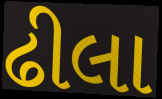
ઢીલા